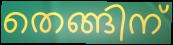
തെങ്ങിന്